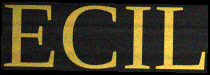
ECIL